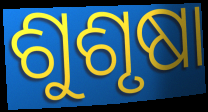
ଶୁଶୃଷା